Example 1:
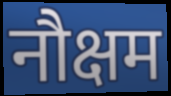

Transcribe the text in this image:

नौक्षम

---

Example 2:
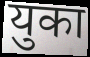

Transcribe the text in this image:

युका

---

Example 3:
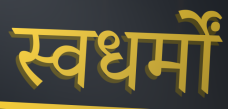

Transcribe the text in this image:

स्वधर्मों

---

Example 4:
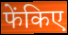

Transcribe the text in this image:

फेंकिए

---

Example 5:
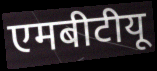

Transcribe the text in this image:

एमबीटीयू